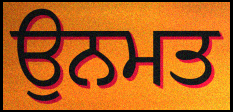
ਉਨਮਤ